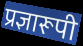
प्रज्ञारूपी